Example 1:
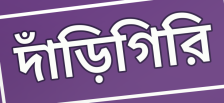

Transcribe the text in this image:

দাঁড়িগিরি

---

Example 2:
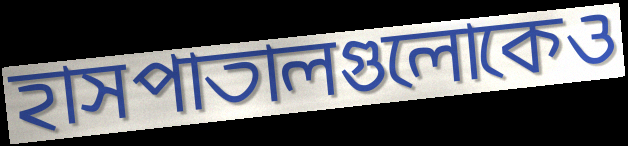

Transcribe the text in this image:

হাসপাতালগুলোকেও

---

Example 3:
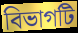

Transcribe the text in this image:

বিভাগটি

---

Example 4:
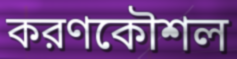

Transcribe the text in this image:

করণকৌশল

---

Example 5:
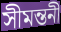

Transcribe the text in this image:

সীমন্তনী